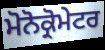
ਮੋਨੋਕ੍ਰੋਮੇਟਰ